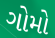
ગોમો